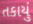
તકાયું